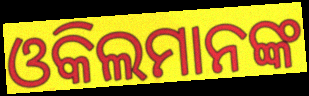
ଓକିଲମାନଙ୍କ